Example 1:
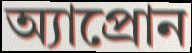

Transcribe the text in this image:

অ্যাপ্রোন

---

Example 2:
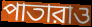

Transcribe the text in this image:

পাতারাও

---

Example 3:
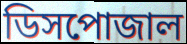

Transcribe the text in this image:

ডিসপোজাল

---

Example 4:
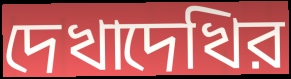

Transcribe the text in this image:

দেখাদেখির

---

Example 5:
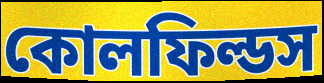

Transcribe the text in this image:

কোলফিল্ডস